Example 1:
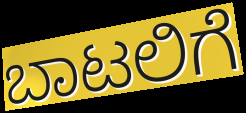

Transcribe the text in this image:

ಬಾಟಲಿಗೆ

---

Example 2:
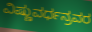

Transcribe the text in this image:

ವಿಷ್ಣುವರ್ಧನ್ರವರ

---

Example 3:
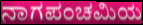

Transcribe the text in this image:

ನಾಗಪಂಚಮಿಯ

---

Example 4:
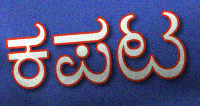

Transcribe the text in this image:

ಕಪಟ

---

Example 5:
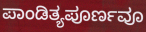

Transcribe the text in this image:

ಪಾಂಡಿತ್ಯಪೂರ್ಣವೂ